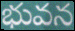
భువన